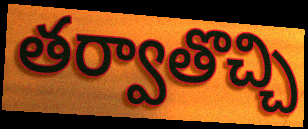
తర్వాతొచ్చి